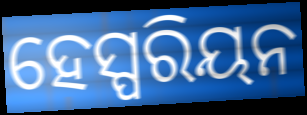
ହେସ୍ପରିୟନ